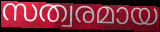
സത്വരമായ